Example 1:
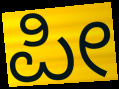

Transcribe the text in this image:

ಪೀ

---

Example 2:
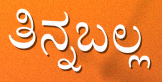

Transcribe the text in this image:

ತಿನ್ನಬಲ್ಲ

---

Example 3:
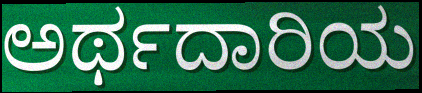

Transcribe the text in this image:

ಅರ್ಥದಾರಿಯ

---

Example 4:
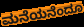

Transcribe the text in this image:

ಮನೆಯನೆಂದೂ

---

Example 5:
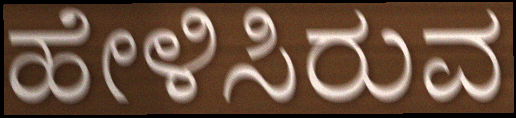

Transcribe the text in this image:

ಹೇಳಿಸಿರುವ